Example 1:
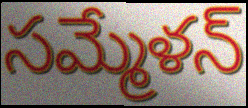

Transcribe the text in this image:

సమ్మేళన్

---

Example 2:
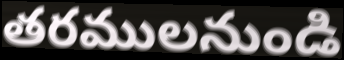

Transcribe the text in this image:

తరములనుండి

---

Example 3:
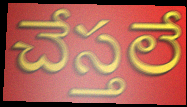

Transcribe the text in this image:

చేస్తలే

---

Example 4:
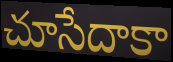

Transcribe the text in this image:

చూసేదాకా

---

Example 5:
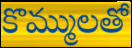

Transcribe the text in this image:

కొమ్ములతో